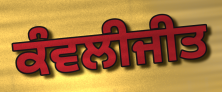
ਕੰਵਲੀਜੀਤ